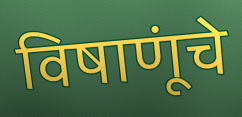
विषाणूंचे